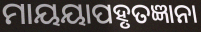
ମାୟୟାପହୃତଜ୍ଞାନା